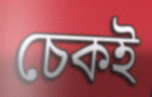
চেকই